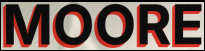
MOORE